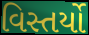
વિસ્તર્યો